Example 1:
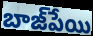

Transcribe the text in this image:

బాజ్‌పేయి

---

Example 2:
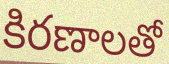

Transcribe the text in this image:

కిరణాలతో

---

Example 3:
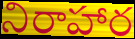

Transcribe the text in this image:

నిరాహార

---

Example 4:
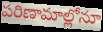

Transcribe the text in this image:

పరిణామాల్లోనూ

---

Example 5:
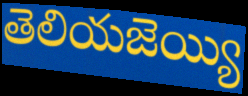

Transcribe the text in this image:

తెలియజెయ్యి